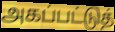
அகப்பட்டுத்